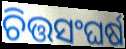
ଚିତ୍ତସଂଘର୍ଷ